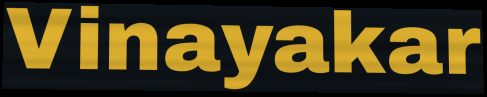
Vinayakar